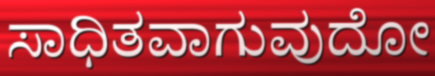
ಸಾಧಿತವಾಗುವುದೋ